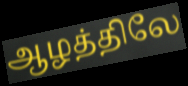
ஆழத்திலே